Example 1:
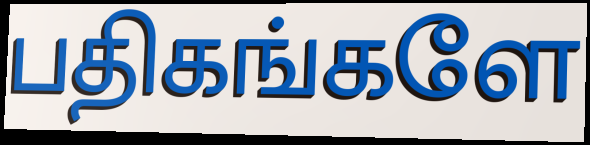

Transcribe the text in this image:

பதிகங்களே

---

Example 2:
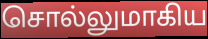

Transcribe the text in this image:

சொல்லுமாகிய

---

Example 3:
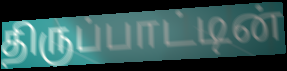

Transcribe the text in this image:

திருப்பாட்டின்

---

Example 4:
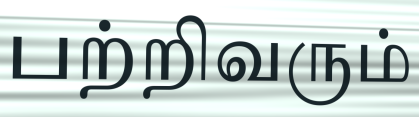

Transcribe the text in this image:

பற்றிவரும்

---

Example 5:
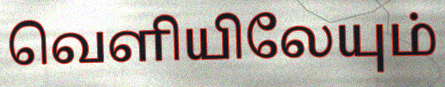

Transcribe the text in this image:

வெளியிலேயும்